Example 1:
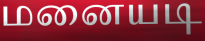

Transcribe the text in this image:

மனையடி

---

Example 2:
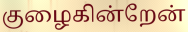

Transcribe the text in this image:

குழைகின்றேன்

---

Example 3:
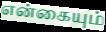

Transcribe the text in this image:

என்கையும்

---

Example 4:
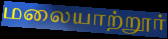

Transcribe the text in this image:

மலையாற்றூர்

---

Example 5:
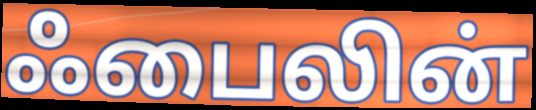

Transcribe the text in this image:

ஃபைலின்